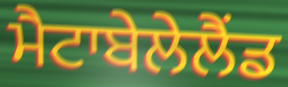
ਮੈਟਾਬੇਲੇਲੈਂਡ